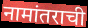
नामांतराची